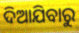
ଦିଆଯିବାରୁ